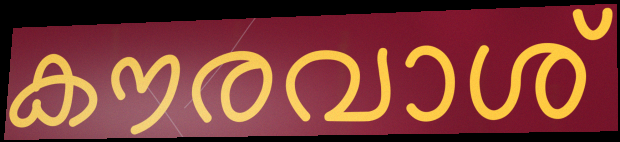
കൗരവാശ്